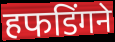
हफडिंगने